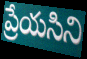
ప్రేయసిని